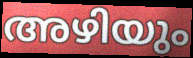
അഴിയും